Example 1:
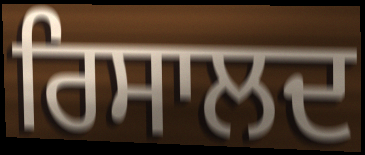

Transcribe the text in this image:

ਰਿਸਾਲਦ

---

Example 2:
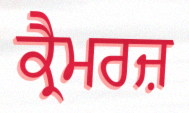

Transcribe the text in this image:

ਕ੍ਰੈਮਰਜ਼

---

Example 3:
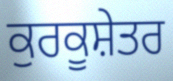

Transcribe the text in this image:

ਕੁਰਕੂਸ਼ੇਤਰ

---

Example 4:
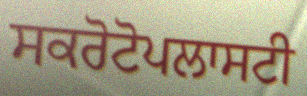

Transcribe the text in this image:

ਸਕਰੋਟੋਪਲਾਸਟੀ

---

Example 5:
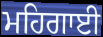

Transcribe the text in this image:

ਮਹਿਗਾਈ